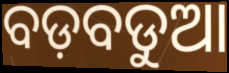
ବଡ଼ବଡୁଆ